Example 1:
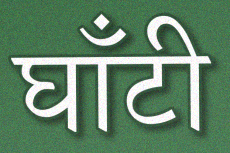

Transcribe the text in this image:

घाँटी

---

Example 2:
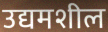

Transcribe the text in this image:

उद्यमशील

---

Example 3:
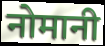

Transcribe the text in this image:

नोमानी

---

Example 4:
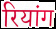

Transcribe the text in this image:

रियांग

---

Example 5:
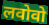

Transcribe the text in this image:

लवोवो